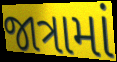
જાત્રામાં